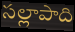
సల్లాపాది